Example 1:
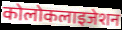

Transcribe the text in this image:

कोलोकलाइजेशन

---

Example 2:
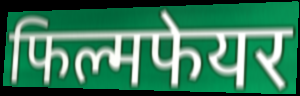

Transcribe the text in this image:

फिल्मफेयर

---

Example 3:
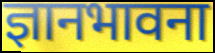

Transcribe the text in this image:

ज्ञानभावना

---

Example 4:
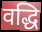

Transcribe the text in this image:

वद्धि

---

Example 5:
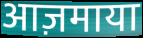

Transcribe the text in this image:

आज़माया